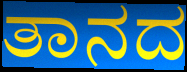
ತಾನದ